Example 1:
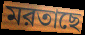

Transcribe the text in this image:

মরতাছে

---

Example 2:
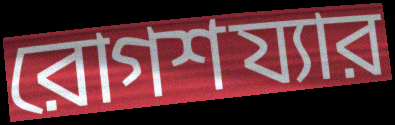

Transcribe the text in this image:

রোগশয্যার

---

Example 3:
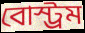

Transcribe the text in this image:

বোস্ট্রম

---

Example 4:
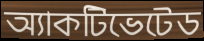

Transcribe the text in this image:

অ্যাকটিভেটেড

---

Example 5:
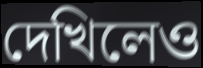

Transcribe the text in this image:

দেখিলেও